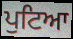
ਪੁਟਿਆ